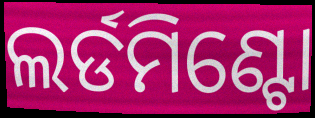
ଲର୍ଡମିଣ୍ଟୋ